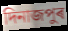
দিনাজপুৰ